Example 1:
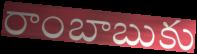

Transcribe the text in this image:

రాంబాబుకు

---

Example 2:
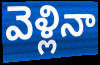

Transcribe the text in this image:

వెళ్లినా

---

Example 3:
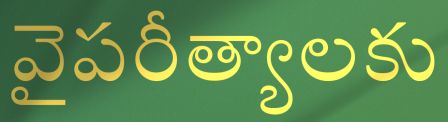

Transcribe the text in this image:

వైపరీత్యాలకు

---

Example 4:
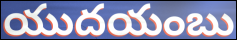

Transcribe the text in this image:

యుదయంబు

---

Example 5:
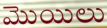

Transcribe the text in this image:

మొయిలు